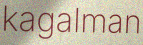
kagalman